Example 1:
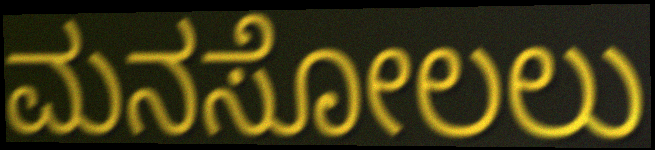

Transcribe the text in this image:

ಮನಸೋಲಲು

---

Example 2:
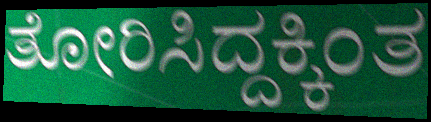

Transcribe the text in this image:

ತೋರಿಸಿದ್ದಕ್ಕಿಂತ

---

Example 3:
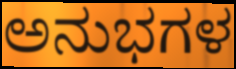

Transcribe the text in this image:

ಅನುಭಗಳ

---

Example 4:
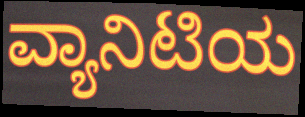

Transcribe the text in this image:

ವ್ಯಾನಿಟಿಯ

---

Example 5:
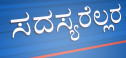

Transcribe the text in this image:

ಸದಸ್ಯರೆಲ್ಲರ